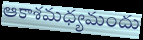
ఆకాశమధ్యమందు